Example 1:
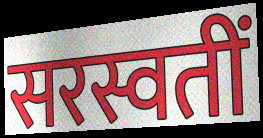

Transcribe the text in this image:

सरस्वतीं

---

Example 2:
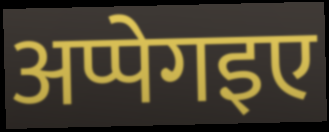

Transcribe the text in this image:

अप्पेगइए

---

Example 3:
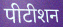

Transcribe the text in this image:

पीटीशन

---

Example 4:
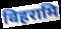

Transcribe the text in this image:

विहरामि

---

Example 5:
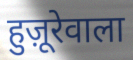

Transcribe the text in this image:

हुज़ूरेवाला